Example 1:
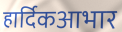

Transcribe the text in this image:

हार्दिकआभार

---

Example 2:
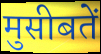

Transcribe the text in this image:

मुसीबतें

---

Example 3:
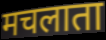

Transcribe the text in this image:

मचलाता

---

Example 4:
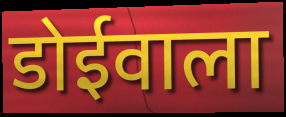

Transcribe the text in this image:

डोईवाला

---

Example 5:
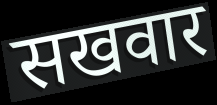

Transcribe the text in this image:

सखवार